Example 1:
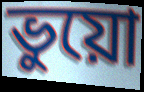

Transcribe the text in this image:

ভুয়ো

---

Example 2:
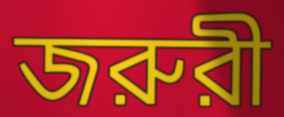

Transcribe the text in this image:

জরুরী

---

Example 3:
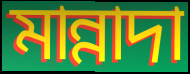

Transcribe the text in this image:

মান্নাদা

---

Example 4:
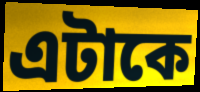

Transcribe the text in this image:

এটাকে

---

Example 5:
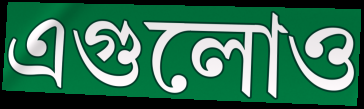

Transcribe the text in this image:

এগুলোও